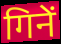
गिनें